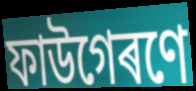
ফাউগেৰণে